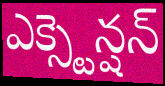
ఎక్స్టెన్షన్